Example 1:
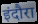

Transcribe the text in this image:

इंदौरा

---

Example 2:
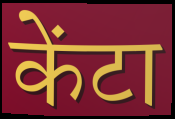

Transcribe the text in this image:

केंटा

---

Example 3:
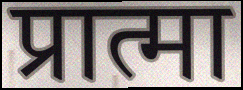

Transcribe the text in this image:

प्रात्मा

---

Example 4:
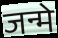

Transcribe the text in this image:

जन्मे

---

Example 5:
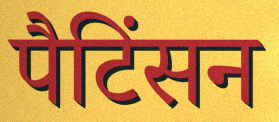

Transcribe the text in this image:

पैटिंसन